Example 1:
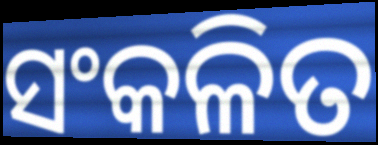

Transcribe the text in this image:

ସଂକଳିତ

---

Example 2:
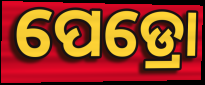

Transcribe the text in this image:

ପେଡ୍ରୋ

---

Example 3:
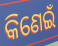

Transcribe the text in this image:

କିଣେଇଁ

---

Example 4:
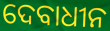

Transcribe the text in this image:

ଦେବାଧୀନ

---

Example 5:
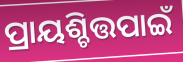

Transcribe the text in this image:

ପ୍ରାୟଶ୍ଚିତ୍ତପାଇଁ